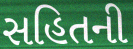
સહિતની